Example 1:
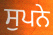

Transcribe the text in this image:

ਸੁਪਨੇ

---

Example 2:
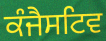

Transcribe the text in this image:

ਕੰਜੈਸਟਿਵ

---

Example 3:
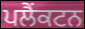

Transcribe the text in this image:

ਪਲੈਂਕਟਨ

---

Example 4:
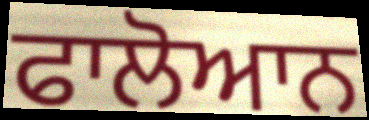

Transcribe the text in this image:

ਫਾਲੋਆਨ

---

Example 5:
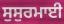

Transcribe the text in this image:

ਸੁਸੁਰਮਾਈ